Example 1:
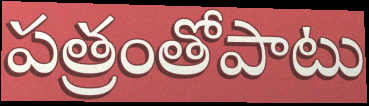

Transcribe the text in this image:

పత్రంతోపాటు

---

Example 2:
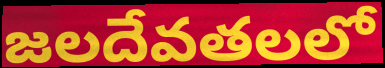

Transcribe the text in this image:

జలదేవతలలో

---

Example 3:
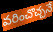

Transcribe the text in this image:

వరించొచ్చనే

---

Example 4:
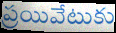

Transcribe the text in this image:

ప్రయివేటుకు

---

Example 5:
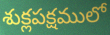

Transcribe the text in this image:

శుక్లపక్షములో